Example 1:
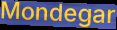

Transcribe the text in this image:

Mondegar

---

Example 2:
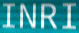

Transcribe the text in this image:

INRI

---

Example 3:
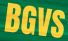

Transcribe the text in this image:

BGVS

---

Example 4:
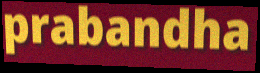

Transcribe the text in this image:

prabandha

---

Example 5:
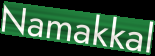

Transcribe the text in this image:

Namakkal